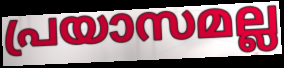
പ്രയാസമല്ല